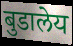
बुडालेय